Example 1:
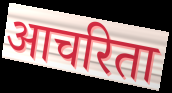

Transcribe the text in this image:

आचरिता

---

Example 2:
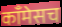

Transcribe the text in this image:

कॉंमेसच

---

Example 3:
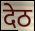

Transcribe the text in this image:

देठ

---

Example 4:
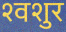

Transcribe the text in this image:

श्वशुर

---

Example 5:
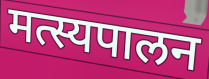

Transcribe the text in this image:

मत्स्यपालन